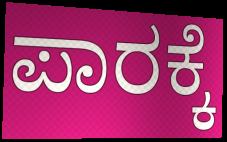
ಪಾರಕ್ಕೆ